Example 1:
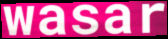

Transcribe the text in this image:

wasar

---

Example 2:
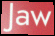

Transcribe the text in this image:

Jaw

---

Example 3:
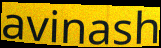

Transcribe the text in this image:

avinash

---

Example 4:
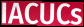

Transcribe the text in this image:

IACUCs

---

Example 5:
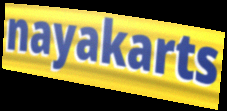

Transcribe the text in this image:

nayakarts